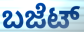
ಬಜೆಟ್